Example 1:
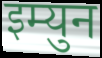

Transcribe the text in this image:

इम्युन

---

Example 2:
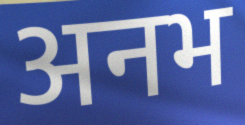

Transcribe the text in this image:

अनभ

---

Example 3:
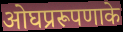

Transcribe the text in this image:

ओघप्ररूपणाके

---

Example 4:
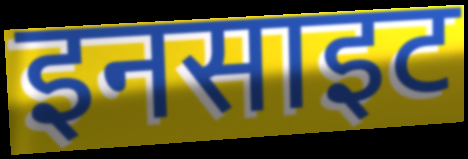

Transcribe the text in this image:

इनसाइट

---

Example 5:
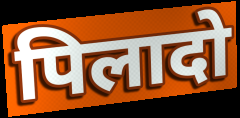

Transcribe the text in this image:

पिलादो